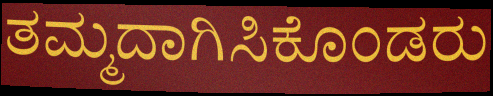
ತಮ್ಮದಾಗಿಸಿಕೊಂಡರು